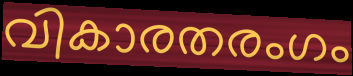
വികാരതരംഗം